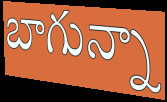
బాగున్నా